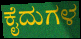
ಕೈದುಗಳ